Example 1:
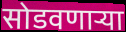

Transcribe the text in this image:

सोडवणाऱ्या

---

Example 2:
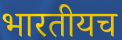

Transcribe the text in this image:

भारतीयच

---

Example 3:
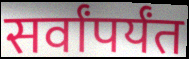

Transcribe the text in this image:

सर्वांपर्यंत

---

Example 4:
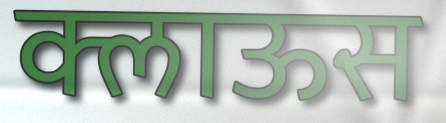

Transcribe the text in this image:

क्लाऊस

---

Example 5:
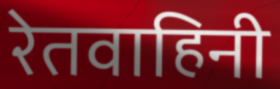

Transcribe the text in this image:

रेतवाहिनी